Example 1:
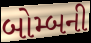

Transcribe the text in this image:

બોમ્બની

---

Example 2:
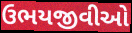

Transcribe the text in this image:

ઉભયજીવીઓ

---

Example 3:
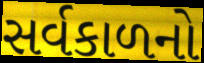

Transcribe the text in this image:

સર્વકાળનો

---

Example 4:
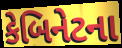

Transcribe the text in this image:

કેબિનેટના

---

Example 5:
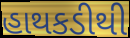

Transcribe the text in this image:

હાથકડીથી